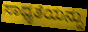
ಸಾಧ್ಯತೆಯನ್ನು